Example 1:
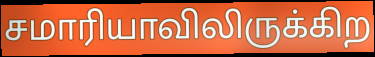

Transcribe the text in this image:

சமாரியாவிலிருக்கிற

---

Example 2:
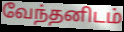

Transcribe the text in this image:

வேந்தனிடம்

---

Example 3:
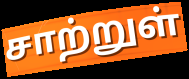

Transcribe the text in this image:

சாற்றுள்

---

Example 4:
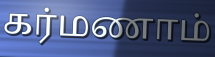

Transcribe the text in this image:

கர்மணாம்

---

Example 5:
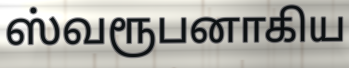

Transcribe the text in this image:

ஸ்வரூபனாகிய